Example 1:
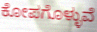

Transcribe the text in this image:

ಕೋಪಗೊಳ್ಳುವೆ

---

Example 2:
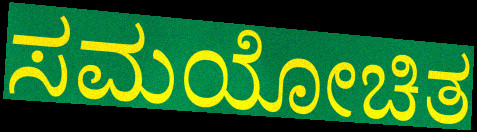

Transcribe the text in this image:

ಸಮಯೋಚಿತ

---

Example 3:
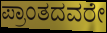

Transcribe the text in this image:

ಪ್ರಾಂತದವರೇ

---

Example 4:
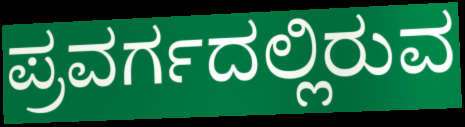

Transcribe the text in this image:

ಪ್ರವರ್ಗದಲ್ಲಿರುವ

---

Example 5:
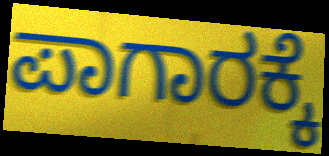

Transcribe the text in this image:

ಪಾಗಾರಕ್ಕೆ